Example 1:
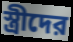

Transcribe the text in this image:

স্ত্রীদের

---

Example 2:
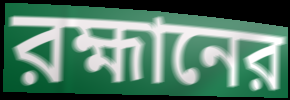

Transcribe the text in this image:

রহ্মানের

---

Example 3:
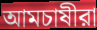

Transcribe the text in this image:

আমচাষীরা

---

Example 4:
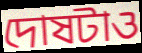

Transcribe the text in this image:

দোষটাও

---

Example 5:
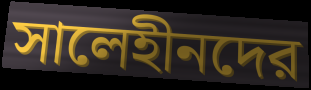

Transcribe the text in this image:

সালেহীনদের